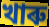
খাৰু